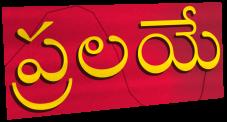
ప్రలయే